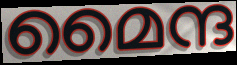
മൈന്ദ